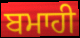
ਬਮਾਹੀ